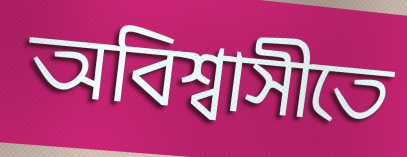
অবিশ্বাসীতে